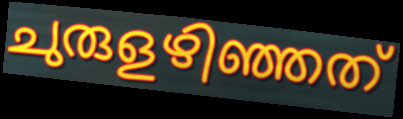
ചുരുളഴിഞ്ഞത്